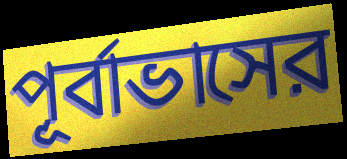
পূর্বাভাসের